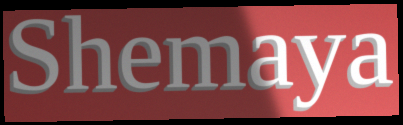
Shemaya